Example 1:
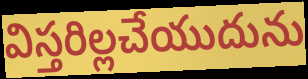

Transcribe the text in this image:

విస్తరిల్లచేయుదును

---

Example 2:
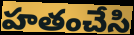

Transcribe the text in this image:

హతంచేసి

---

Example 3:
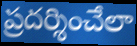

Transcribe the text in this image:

ప్రదర్శించేలా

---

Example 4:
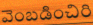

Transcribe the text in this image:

వెంబడించిరి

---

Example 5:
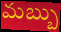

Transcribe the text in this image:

మబ్బు